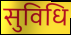
सुविधि